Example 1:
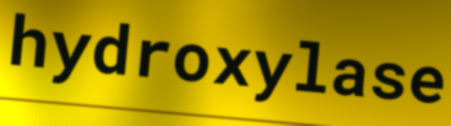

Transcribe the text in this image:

hydroxylase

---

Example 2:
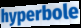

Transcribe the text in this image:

hyperbole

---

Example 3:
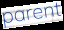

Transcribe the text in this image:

parent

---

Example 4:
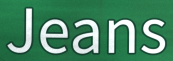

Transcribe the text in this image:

Jeans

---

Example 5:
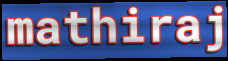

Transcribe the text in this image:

mathiraj